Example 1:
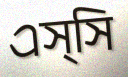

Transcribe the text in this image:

এস্‌সি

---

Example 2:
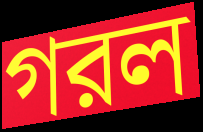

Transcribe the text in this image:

গরল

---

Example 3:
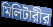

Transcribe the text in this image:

মিলিটারীর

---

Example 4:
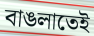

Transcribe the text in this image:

বাঙলাতেই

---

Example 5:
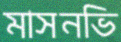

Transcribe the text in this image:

মাসনভি